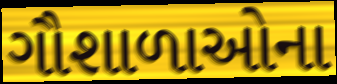
ગૌશાળાઓના